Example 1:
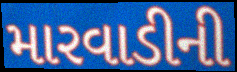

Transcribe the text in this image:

મારવાડીની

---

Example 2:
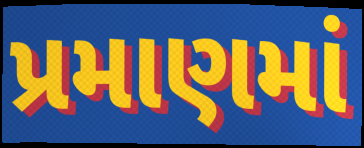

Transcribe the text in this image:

પ્રમાણમાં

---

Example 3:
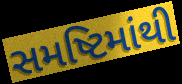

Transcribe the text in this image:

સમષ્ટિમાંથી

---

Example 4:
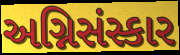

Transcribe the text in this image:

અગ્નિસંસ્કાર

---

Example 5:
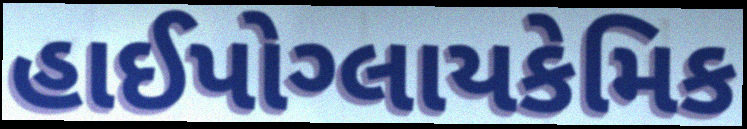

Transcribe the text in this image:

હાઈપોગ્લાયકેમિક